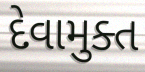
દેવામુક્ત